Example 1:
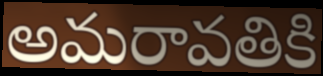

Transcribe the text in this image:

అమరావతికి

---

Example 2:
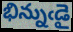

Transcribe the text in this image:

భిన్నుఁడై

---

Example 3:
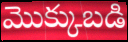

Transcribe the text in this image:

మొక్కుబడి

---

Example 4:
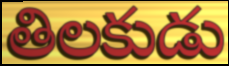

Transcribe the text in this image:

తిలకుడు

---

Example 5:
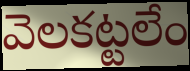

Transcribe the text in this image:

వెలకట్టలేం